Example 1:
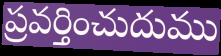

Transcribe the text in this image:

ప్రవర్తించుదుము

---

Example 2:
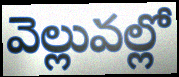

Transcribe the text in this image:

వెల్లువల్లో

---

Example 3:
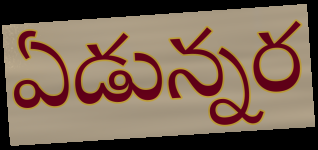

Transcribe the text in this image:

ఏడున్నర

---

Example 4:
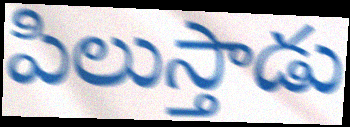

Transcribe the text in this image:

పిలుస్తాడు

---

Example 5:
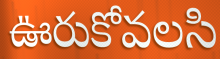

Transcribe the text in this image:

ఊరుకోవలసి